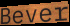
Bever